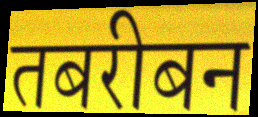
तबरीबन